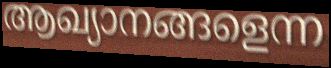
ആഖ്യാനങ്ങളെന്ന